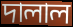
দালাল